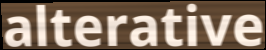
alterative